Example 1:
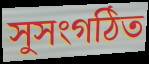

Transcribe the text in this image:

সুসংগঠিত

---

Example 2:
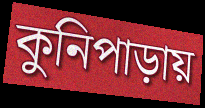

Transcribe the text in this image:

কুনিপাড়ায়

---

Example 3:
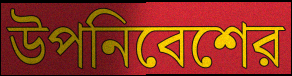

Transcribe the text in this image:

উপনিবেশের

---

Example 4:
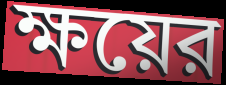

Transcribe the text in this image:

ক্ষয়ের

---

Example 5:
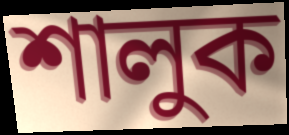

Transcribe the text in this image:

শালুক